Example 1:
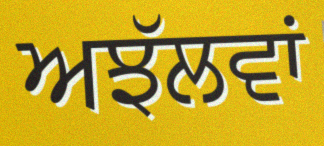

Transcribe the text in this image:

ਅਝੱਲਵਾਂ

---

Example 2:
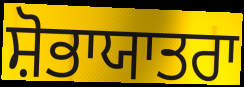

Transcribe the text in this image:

ਸ਼ੋਭਾਯਾਤਰਾ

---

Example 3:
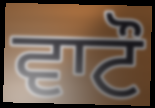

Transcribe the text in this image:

ਵਾਟੌ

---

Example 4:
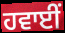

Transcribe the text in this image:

ਹਵਾਈਂ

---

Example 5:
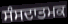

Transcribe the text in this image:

ਸੰਸਦਾਤਮਕ